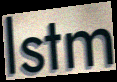
lstm